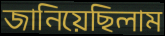
জানিয়েছিলাম